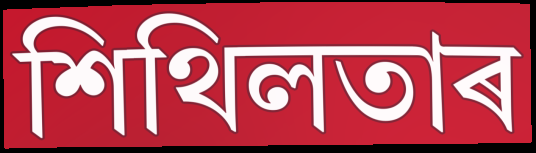
শিথিলতাৰ